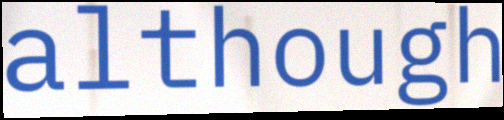
although